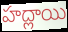
హద్లాయి